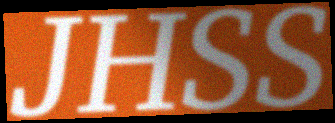
JHSS